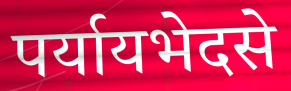
पर्यायभेदसे